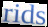
rids